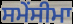
ਸਮੇਂਸੀਮਾ